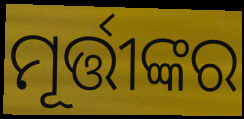
ମୂର୍ତ୍ତୀଙ୍କର